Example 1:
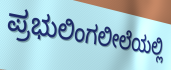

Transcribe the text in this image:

ಪ್ರಭುಲಿಂಗಲೀಲೆಯಲ್ಲಿ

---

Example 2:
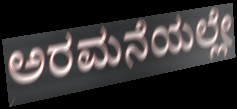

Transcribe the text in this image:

ಅರಮನೆಯಲ್ಲೇ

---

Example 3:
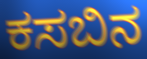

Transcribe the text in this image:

ಕಸಬಿನ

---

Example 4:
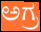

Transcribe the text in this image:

ಅಗ್ರ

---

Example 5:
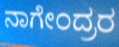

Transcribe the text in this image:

ನಾಗೇಂದ್ರರ